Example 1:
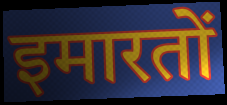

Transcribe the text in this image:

इमारतों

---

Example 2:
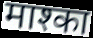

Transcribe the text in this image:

माश्का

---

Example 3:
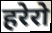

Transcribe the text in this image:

हरेरो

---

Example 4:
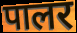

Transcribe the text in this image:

पालर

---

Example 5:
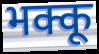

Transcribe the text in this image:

भक्कू